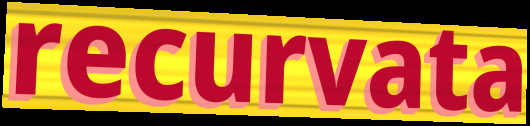
recurvata